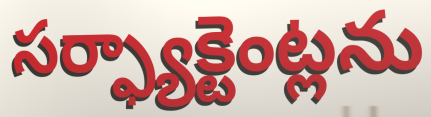
సర్ఫ్యాక్టెంట్లను